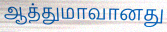
ஆத்துமாவானது